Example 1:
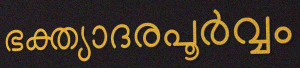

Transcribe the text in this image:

ഭക്ത്യാദരപൂർവ്വം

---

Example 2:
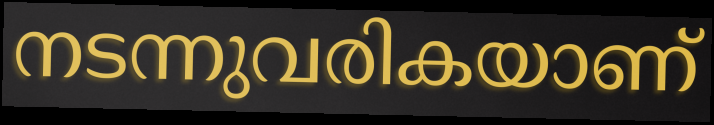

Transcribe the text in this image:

നടന്നുവരികയാണ്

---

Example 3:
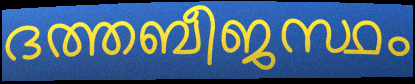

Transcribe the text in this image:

ദത്തബീജസ്ഥം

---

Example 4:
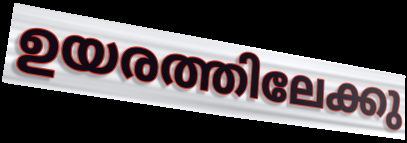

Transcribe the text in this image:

ഉയരത്തിലേക്കു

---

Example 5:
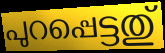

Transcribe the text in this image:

പുറപ്പെട്ടതു്